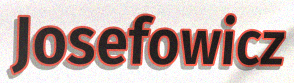
Josefowicz